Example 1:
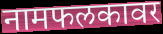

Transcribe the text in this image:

नामफलकावर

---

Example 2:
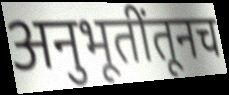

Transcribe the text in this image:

अनुभूतींतूनच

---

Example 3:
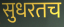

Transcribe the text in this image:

सुधरतच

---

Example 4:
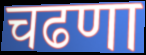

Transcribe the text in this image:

चढणा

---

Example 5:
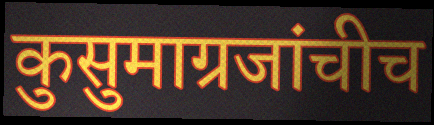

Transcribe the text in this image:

कुसुमाग्रजांचीच